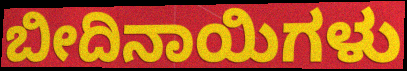
ಬೀದಿನಾಯಿಗಳು